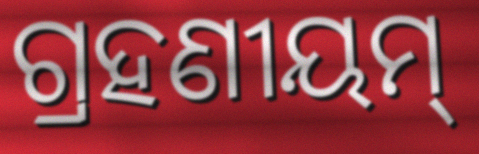
ଗ୍ରହଣୀୟମ୍